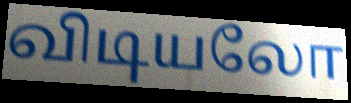
விடியலோ